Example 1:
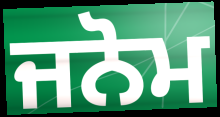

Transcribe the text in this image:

ਜਨੋਮ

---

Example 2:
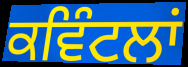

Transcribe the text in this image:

ਕਵਿੰਟਲਾਂ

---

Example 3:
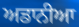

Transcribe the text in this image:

ਅਡਾਨੀਆ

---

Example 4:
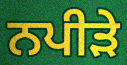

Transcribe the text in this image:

ਨਪੀੜੇ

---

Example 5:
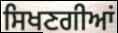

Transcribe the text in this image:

ਸਿਖਣਗੀਆਂ